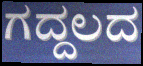
ಗದ್ದಲದ